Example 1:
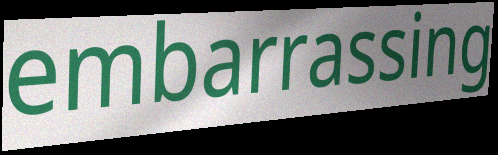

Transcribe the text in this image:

embarrassing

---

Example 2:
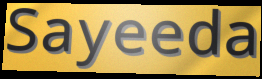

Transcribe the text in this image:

Sayeeda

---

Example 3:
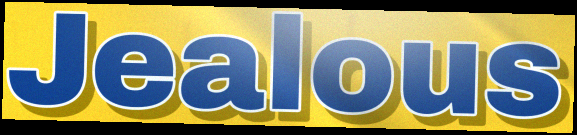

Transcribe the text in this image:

Jealous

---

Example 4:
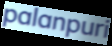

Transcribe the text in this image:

palanpuri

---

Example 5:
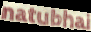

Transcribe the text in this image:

natubhai